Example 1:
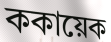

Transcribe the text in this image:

ককায়েক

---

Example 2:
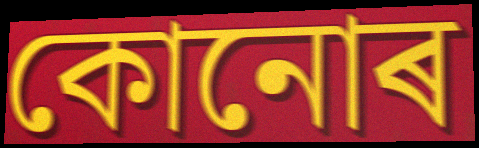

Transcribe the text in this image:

কোনোৰ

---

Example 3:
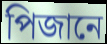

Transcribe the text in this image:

পিজানে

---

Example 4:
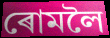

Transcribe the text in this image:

ৰোমলৈ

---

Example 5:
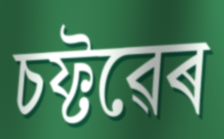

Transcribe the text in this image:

চফ্টৱেৰ